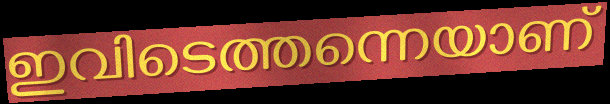
ഇവിടെത്തന്നെയാണ്